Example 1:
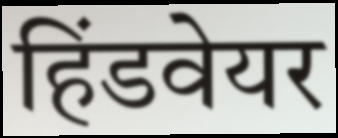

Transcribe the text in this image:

हिंडवेयर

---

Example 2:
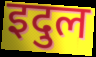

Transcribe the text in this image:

इदुल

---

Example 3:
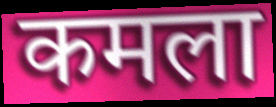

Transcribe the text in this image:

कमला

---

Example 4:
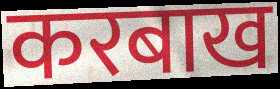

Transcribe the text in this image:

करबाख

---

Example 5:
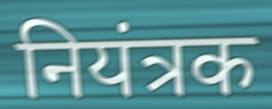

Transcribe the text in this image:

नियंत्रक